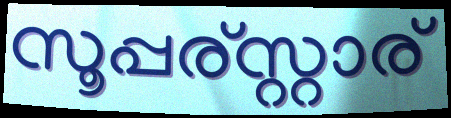
സൂപ്പര്സ്റ്റാര്